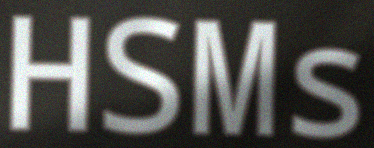
HSMs